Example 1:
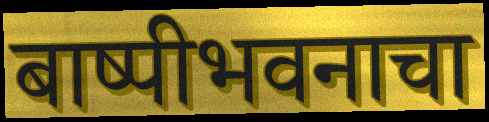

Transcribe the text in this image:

बाष्पीभवनाचा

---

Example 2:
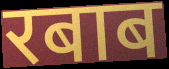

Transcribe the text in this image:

रबाब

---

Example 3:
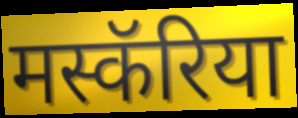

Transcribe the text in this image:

मस्कॅरिया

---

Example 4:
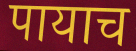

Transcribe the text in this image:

पायाच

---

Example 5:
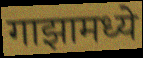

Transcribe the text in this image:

गाझामध्ये